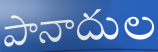
పానాదుల